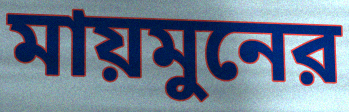
মায়মুনের